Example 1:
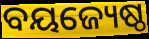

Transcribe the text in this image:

ବୟଜ୍ୟେଷ୍ଠ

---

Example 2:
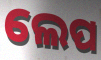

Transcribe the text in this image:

ଲେପ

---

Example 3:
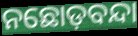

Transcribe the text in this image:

ନଛୋଡ଼ବନ୍ଦା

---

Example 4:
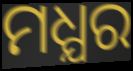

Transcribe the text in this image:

ମଧ୍ଯର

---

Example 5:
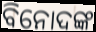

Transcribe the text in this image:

ବିନୋଦଙ୍କ